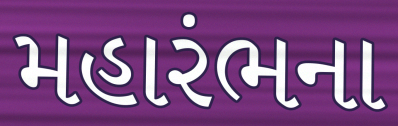
મહારંભના